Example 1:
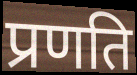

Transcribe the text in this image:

प्रणति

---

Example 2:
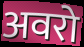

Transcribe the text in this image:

अवरो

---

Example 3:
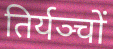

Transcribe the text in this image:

तिर्यञ्चों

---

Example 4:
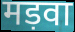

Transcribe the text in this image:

मड़वा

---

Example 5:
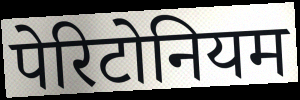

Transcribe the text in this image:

पेरिटोनियम